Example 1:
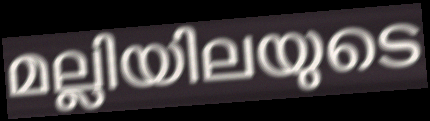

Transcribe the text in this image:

മല്ലിയിലയുടെ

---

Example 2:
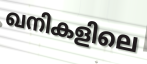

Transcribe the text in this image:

ഖനികളിലെ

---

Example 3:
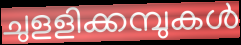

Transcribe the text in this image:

ചുളളിക്കമ്പുകൾ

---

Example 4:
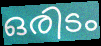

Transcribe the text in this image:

ഒരിടം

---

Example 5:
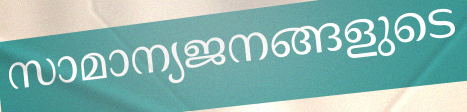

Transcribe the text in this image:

സാമാന്യജനങ്ങളുടെ